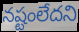
నష్టంలేదని